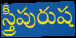
స్త్రీపురుష